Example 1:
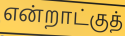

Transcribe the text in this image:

என்றாட்குத்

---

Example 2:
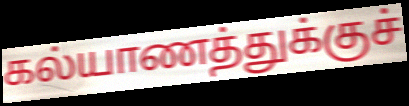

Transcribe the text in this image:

கல்யாணத்துக்குச்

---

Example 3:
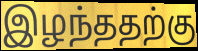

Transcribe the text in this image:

இழந்ததற்கு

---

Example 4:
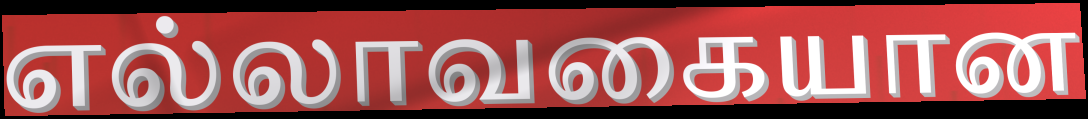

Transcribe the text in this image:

எல்லாவகையான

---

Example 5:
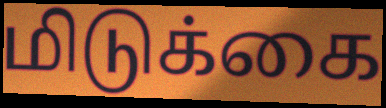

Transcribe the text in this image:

மிடுக்கை